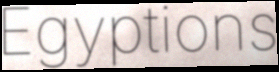
Egyptions